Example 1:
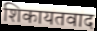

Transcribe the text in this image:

शिकायतवाद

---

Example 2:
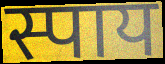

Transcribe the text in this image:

स्पाय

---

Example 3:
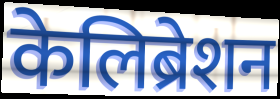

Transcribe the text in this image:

केलिब्रेशन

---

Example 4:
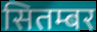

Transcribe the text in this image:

सितम्बर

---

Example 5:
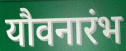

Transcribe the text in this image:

यौवनारंभ